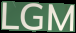
LGM